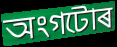
অংগটোৰ